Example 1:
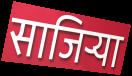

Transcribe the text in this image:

साजिर्‍या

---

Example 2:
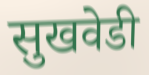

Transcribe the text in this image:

सुखवेडी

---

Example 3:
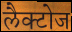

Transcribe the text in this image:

लैक्टोज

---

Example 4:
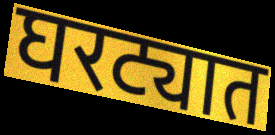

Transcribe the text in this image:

घरट्यात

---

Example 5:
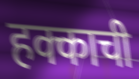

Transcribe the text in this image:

हक्काची